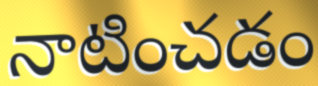
నాటించడం